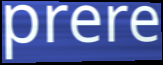
prere